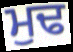
ਮੁਢ